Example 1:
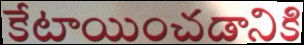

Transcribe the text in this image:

కేటాయించడానికి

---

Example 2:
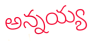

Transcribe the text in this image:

అన్నయ్య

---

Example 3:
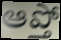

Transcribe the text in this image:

ఆప్తో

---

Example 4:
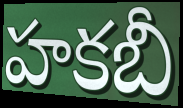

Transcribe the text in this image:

హకబీ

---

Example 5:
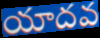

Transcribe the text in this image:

యాదవ